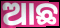
ଆଛ